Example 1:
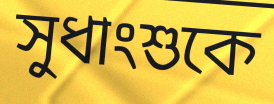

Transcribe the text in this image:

সুধাংশুকে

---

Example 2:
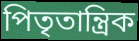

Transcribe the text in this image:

পিতৃতান্ত্রিক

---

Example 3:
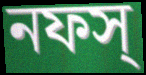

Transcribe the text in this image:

নফস্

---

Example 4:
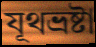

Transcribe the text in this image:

যূথভ্রষ্টা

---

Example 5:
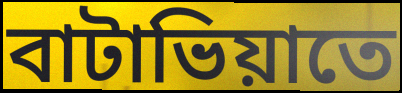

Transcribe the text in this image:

বাটাভিয়াতে